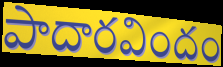
పాదారవిందం